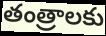
తంత్రాలకు